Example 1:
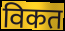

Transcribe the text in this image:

विकत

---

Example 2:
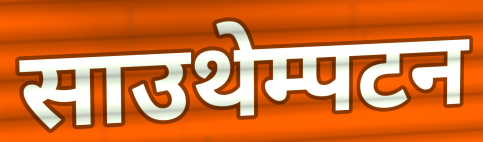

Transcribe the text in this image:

साउथेम्पटन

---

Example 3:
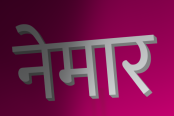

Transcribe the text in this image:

नेमार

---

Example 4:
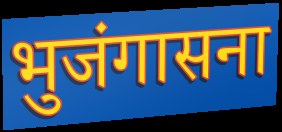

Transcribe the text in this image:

भुजंगासना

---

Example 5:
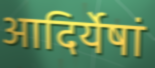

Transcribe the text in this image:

आदिर्येषां